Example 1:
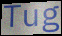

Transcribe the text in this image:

Tug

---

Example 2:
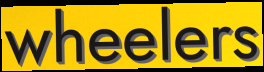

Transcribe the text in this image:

wheelers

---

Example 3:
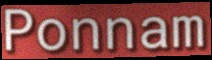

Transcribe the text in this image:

Ponnam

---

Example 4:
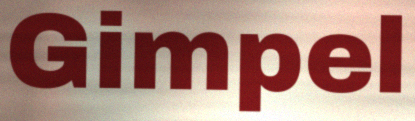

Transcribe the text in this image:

Gimpel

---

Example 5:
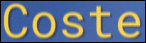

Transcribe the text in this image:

Coste